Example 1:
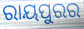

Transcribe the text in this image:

ରାୟପୁରର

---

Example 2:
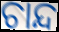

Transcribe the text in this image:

ଚାନ୍ଦ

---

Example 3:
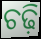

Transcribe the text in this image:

ଚଢ଼ି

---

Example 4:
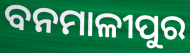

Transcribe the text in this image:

ବନମାଳୀପୁର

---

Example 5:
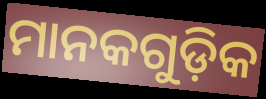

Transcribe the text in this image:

ମାନକଗୁଡ଼ିକ